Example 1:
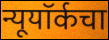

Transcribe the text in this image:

न्यूयॉर्कचा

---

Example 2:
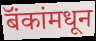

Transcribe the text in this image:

बॅंकांमधून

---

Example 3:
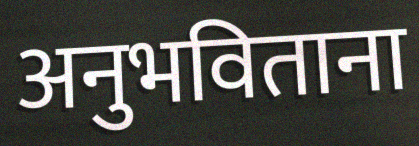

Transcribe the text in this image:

अनुभविताना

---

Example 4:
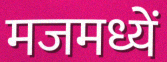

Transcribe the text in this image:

मजमध्यें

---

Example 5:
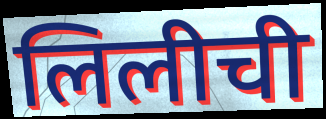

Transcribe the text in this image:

लिलीची